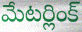
మేటర్లింక్